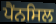
ਪੈਂਨਸਿਲ